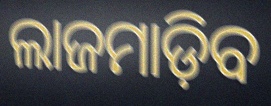
ଲାଜମାଡ଼ିବ